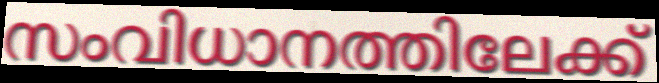
സംവിധാനത്തിലേക്ക്